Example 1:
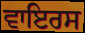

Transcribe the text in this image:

ਵਾਇਰਸ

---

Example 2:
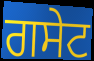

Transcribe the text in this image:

ਗਸੇਟ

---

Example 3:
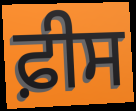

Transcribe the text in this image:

ਫ਼ੀਸ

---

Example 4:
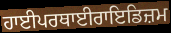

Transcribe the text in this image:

ਹਾਈਪਰਥਾਈਰਾਇਡਿਜ਼ਮ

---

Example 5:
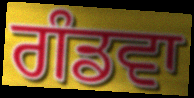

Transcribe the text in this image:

ਗੰਡਵਾ